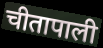
चीतापाली